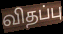
விதப்பு